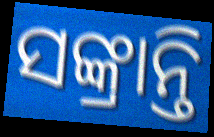
ସଙ୍କ୍ରାନ୍ତି